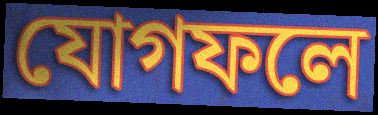
যোগফলে